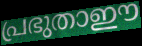
പ്രഭുതാഈ